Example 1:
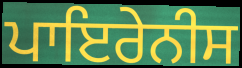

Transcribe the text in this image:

ਪਾਇਰੇਨੀਸ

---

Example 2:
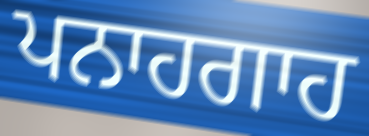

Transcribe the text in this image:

ਪਨਾਹਗਾਹ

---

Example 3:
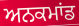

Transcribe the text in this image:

ਅਨਕਮਾਂਡ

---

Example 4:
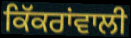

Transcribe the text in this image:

ਕਿੱਕਰਾਂਵਾਲੀ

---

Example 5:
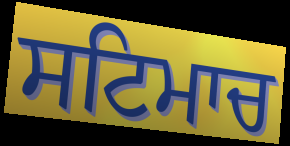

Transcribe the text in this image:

ਸਟਿਮਾਚ